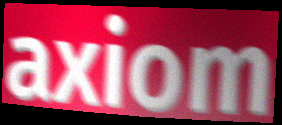
axiom